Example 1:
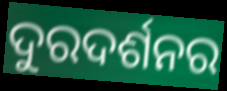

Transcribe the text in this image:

ଦୁରଦର୍ଶନର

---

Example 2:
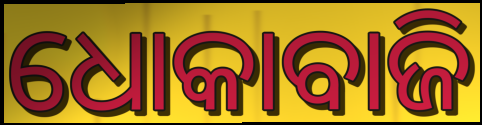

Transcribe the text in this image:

ଧୋକାବାଜି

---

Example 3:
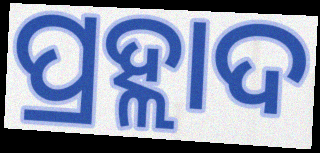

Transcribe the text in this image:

ପ୍ରହ୍ଲାଦ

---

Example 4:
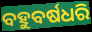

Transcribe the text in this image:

ବହୁବର୍ଷଧରି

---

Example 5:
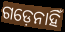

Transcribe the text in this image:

ଗଡ଼େନାହିଁ